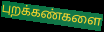
புறக்கண்களை